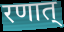
रणात्